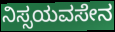
ನಿಸ್ಸಯವಸೇನ